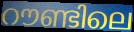
റൗണ്ടിലെ